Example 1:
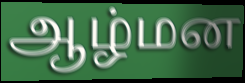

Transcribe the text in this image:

ஆழ்மன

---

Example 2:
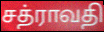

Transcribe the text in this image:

சத்ராவதி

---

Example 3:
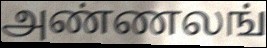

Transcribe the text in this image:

அண்ணலங்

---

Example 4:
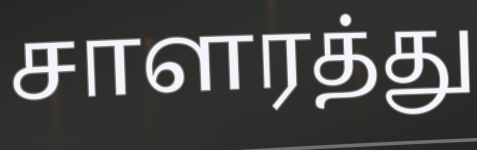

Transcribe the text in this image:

சாளரத்து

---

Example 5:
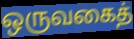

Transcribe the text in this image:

ஒருவகைத்